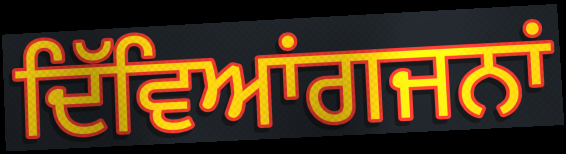
ਦਿੱਵਿਆਂਗਜਨਾਂ